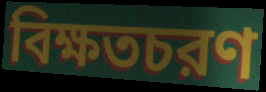
বিক্ষতচরণ